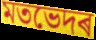
মতভেদৰ